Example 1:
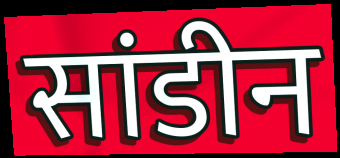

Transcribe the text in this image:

सांडीन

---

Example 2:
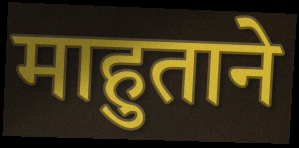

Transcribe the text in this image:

माहुताने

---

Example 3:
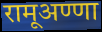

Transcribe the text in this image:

रामूअण्णा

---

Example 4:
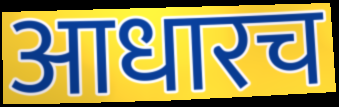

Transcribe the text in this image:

आधारच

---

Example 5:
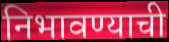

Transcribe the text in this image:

निभावण्याची